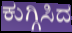
ಕುಗ್ಗಿಸಿದ